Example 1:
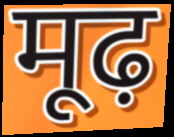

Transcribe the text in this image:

मूढ़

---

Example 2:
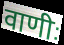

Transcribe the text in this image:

वाणीः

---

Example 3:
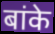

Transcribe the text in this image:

बांके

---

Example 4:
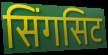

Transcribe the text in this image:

सिंगसिट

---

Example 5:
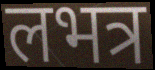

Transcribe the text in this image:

लभत्र